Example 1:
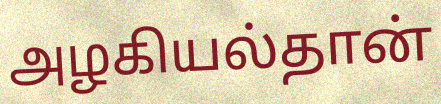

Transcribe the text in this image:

அழகியல்தான்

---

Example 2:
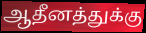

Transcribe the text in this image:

ஆதீனத்துக்கு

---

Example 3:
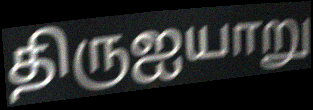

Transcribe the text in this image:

திருஐயாறு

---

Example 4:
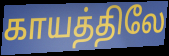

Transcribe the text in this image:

காயத்திலே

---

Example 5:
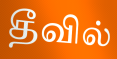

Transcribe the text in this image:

தீவில்